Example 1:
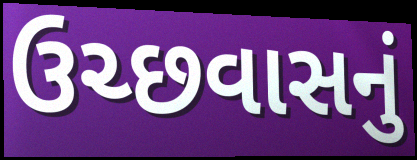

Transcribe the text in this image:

ઉચ્છવાસનું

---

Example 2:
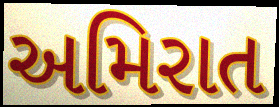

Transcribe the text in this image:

અમિરાત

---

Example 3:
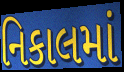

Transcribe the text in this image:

નિકાલમાં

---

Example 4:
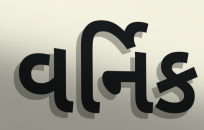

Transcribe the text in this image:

વર્નિક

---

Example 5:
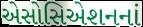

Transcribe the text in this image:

એસોસિએશનનાં